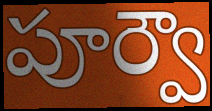
పూర్వౌ